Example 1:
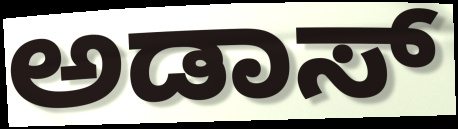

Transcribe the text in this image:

ಅಡಾಸ್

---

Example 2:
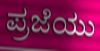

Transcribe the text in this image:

ಪ್ರಜೆಯು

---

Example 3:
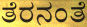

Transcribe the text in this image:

ತೆರನಂತೆ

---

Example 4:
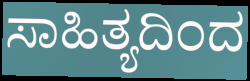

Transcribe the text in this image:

ಸಾಹಿತ್ಯದಿಂದ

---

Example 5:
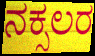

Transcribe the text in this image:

ನಕ್ಸಲರ